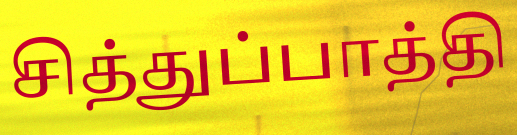
சித்துப்பாத்தி